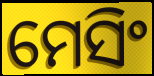
ମେସିଂ